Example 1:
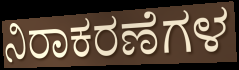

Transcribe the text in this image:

ನಿರಾಕರಣೆಗಳ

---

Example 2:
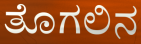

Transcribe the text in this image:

ತೊಗಲಿನ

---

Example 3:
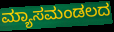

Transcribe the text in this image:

ಮ್ಯಾಸಮಂಡಲದ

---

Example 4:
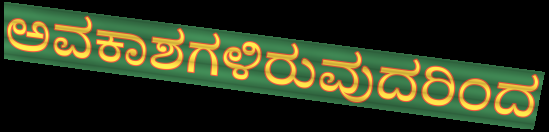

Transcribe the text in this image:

ಅವಕಾಶಗಳಿರುವುದರಿಂದ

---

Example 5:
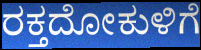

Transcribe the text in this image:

ರಕ್ತದೋಕುಳಿಗೆ